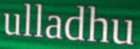
ulladhu